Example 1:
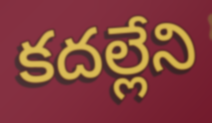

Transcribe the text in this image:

కదల్లేని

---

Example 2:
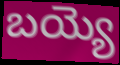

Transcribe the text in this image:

బయ్యె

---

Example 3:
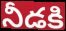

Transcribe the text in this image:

నీడకి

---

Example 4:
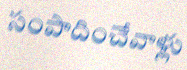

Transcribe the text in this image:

సంపాదించేవాళ్లు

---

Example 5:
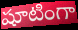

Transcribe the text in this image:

షూటింగా